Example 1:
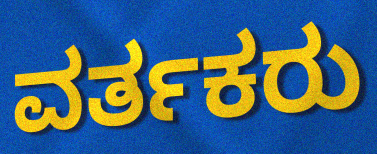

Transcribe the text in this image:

ವರ್ತಕರು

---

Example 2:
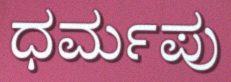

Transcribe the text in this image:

ಧರ್ಮಪು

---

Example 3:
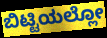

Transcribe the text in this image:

ಬಿಟ್ಟಿಯಲ್ಲೋ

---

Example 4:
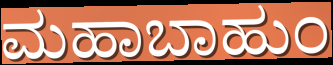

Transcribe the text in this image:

ಮಹಾಬಾಹುಂ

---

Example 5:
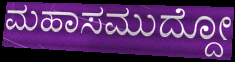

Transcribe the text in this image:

ಮಹಾಸಮುದ್ದೋ